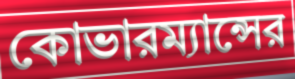
কোভারম্যান্সের